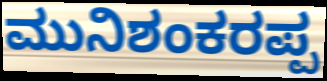
ಮುನಿಶಂಕರಪ್ಪ